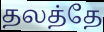
தலத்தே